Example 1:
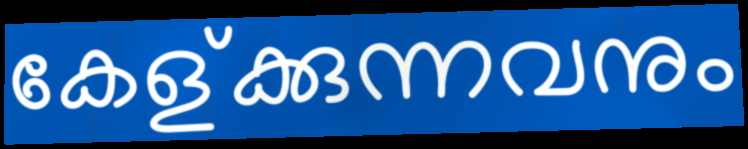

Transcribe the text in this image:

കേള്ക്കുന്നവനും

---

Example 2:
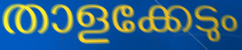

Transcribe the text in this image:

താളക്കേടും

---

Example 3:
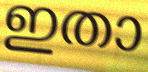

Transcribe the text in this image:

ഇതാ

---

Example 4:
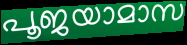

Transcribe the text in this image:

പൂജയാമാസ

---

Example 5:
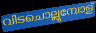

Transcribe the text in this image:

വിടചൊല്ലുമ്പോള്